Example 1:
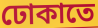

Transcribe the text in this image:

ঢোকাতে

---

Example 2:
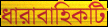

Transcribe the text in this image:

ধারাবাহিকটি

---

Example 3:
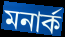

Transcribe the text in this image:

মনার্ক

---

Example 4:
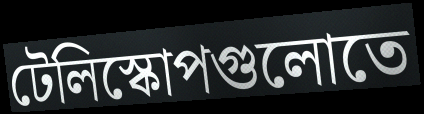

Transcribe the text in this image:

টেলিস্কোপগুলোতে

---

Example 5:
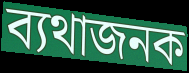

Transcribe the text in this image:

ব্যথাজনক